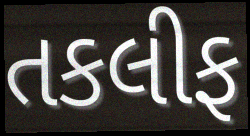
તકલીફ